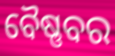
ବୈଷ୍ଣବର